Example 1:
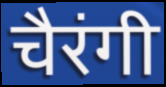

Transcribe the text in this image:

चैरंगी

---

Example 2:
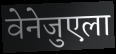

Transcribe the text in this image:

वेनेजुएला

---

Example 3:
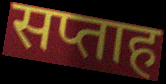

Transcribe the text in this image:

सप्ताह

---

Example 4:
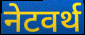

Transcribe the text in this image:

नेटवर्थ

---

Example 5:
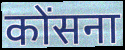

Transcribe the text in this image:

कोंसना